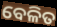
ବେଳିତ